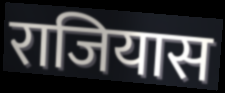
राजियास